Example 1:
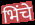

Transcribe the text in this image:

भिंचे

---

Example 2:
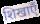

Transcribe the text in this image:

शिखाएँ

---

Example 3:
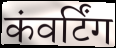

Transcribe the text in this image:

कंवर्टिंग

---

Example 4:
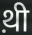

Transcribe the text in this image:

थ़ी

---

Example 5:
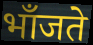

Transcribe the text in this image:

भाँजते